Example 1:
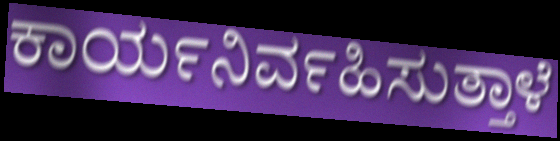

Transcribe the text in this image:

ಕಾರ್ಯನಿರ್ವಹಿಸುತ್ತಾಳೆ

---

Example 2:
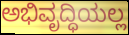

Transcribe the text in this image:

ಅಭಿವೃದ್ಧಿಯಲ್ಲ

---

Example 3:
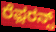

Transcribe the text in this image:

ರೆಫ಼ರನ್ಸ್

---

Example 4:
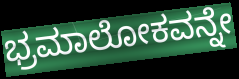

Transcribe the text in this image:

ಭ್ರಮಾಲೋಕವನ್ನೇ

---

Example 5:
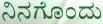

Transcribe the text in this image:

ನಿನಗೊಂದು